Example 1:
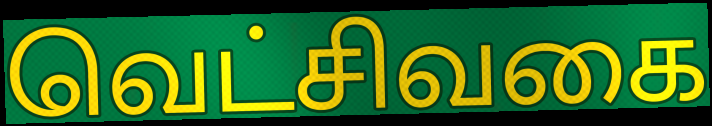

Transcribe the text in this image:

வெட்சிவகை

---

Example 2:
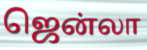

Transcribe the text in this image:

ஜென்லா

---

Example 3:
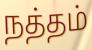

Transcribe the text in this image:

நத்தம்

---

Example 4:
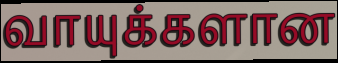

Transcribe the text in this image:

வாயுக்களான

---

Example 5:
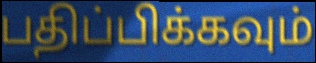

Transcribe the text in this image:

பதிப்பிக்கவும்